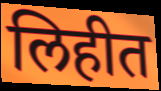
लिहीत